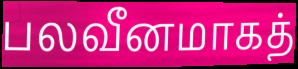
பலவீனமாகத்